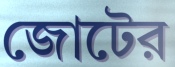
জোটের